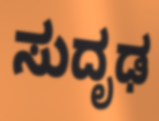
ಸುದೃಢ